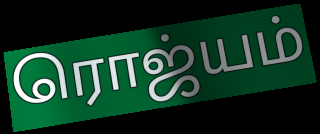
ரொஜ்யம்